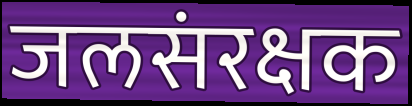
जलसंरक्षक